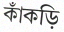
কাঁকড়ি